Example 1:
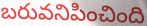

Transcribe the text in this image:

బరువనిపించింది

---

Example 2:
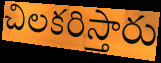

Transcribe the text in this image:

చిలకరిస్తారు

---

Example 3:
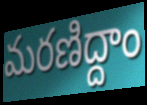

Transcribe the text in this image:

మరణిద్దాం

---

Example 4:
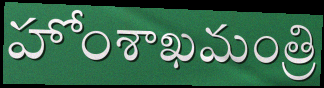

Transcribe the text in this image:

హోంశాఖమంత్రి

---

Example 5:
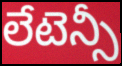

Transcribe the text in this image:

లేటెన్సీ